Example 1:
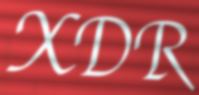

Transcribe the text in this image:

XDR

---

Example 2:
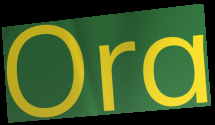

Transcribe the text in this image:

Ora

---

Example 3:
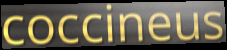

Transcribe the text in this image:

coccineus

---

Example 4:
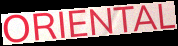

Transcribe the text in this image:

ORIENTAL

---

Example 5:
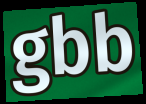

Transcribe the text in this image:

gbb